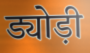
ड्योड़ी